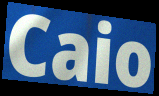
Caio